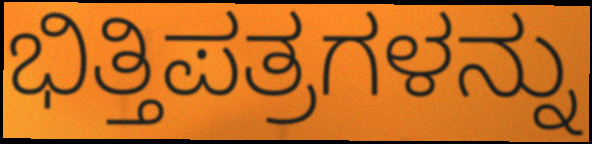
ಭಿತ್ತಿಪತ್ರಗಳನ್ನು